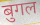
बुगल